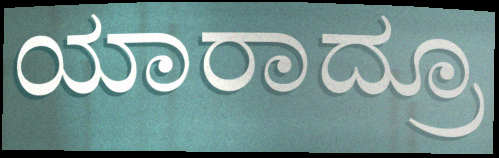
ಯಾರಾದ್ರೂ